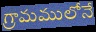
గ్రామములోనే